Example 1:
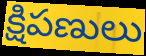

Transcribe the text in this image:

క్షిపణులు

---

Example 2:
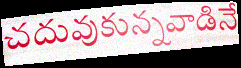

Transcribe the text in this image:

చదువుకున్నవాడినే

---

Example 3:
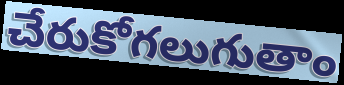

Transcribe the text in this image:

చేరుకోగలుగుతాం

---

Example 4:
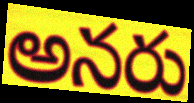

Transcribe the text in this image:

అనరు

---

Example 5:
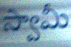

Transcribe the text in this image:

స్వామీ